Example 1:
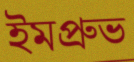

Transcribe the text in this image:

ইমপ্রুভ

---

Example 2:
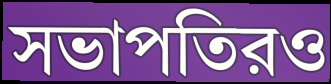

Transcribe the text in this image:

সভাপতিরও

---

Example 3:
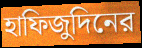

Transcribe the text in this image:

হাফিজুদিনের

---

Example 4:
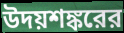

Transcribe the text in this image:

উদয়শঙ্করের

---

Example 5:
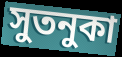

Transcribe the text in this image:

সুতনুকা